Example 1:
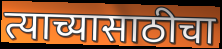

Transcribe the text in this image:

त्याच्यासाठीचा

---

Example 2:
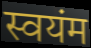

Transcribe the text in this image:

स्वयंम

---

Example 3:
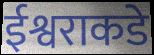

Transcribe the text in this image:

ईश्वराकडे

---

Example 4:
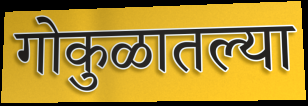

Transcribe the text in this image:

गोकुळातल्या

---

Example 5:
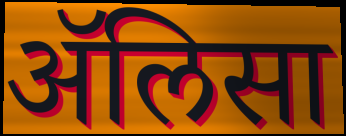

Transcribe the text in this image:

ॲलिसा